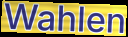
Wahlen